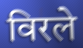
विरले